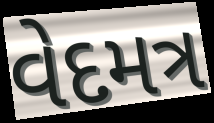
વેદમત્ર